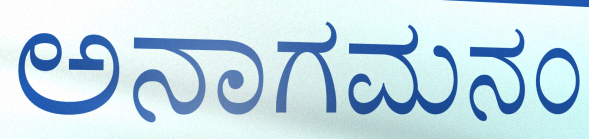
ಅನಾಗಮನಂ